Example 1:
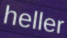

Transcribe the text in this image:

heller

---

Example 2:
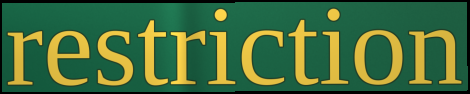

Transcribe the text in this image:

restriction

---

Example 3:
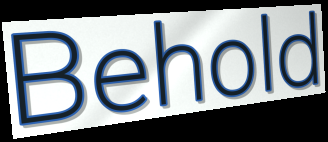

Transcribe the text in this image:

Behold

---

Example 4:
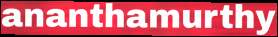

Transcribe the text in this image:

ananthamurthy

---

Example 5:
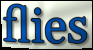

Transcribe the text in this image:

flies